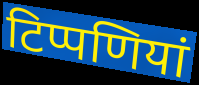
टिप्‍पणियां